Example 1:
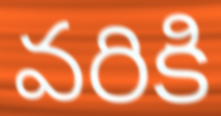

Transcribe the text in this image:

వరికి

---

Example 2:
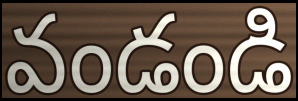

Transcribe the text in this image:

వండండి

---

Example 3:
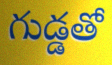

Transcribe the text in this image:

గుడ్డతో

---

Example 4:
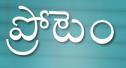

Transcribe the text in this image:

ప్రోటెం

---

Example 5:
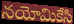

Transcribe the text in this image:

నయోమికేసి